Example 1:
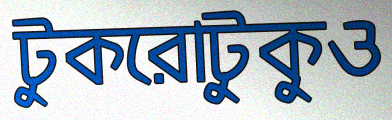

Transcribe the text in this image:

টুকরোটুকুও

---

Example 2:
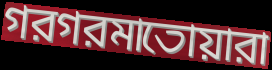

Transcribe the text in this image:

গরগরমাতোয়ারা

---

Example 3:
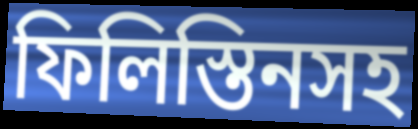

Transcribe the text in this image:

ফিলিস্তিনসহ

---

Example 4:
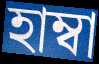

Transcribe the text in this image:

হাম্বা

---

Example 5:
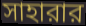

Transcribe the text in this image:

সাহারার